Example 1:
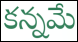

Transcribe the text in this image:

కన్నమే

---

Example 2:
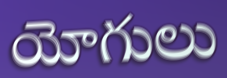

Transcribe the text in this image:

యోగులు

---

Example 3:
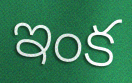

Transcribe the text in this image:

ఇంక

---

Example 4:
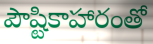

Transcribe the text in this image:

పౌష్టికాహారంతో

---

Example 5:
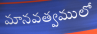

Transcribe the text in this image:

మానవత్వములో